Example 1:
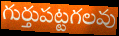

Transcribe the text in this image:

గుర్తుపట్టగలవు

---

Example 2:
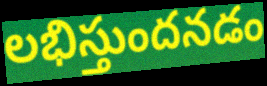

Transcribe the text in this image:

లభిస్తుందనడం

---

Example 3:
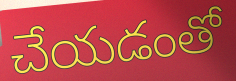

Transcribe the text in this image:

చేయడంతో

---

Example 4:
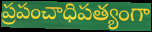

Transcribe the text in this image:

ప్రపంచాధిపత్యంగా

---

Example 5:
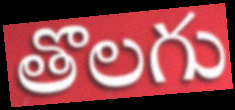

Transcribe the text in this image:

తొలగు